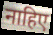
नाहिए